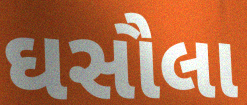
ઘસૌલા